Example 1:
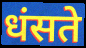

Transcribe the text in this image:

धंसते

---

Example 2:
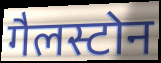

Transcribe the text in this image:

गैलस्टोन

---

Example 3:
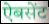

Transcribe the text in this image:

ऐबसेंट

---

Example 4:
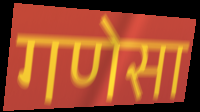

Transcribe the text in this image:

गणेसा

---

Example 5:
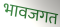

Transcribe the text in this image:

भावजगत